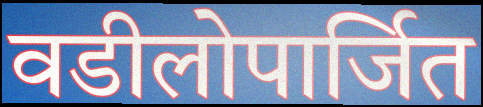
वडीलोपार्जित